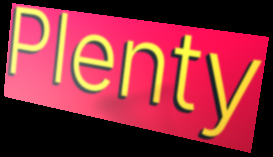
Plenty